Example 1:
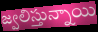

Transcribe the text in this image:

జ్వలిస్తున్నాయి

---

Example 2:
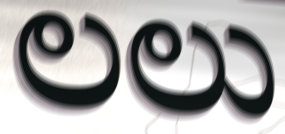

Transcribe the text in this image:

లలు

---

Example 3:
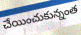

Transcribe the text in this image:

చేయించుకున్నంత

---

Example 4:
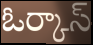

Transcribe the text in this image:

ఓర్కాస్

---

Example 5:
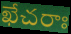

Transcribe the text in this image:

ఖేచరాః